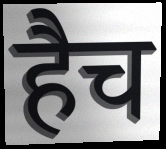
हैच